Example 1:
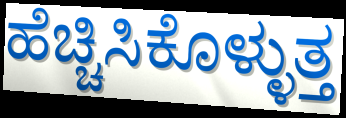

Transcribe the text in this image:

ಹೆಚ್ಚಿಸಿಕೊಳ್ಳುತ್ತ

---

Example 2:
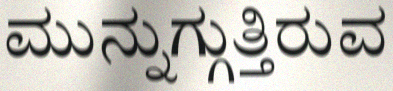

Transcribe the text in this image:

ಮುನ್ನುಗ್ಗುತ್ತಿರುವ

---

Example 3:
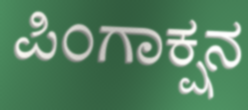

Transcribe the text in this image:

ಪಿಂಗಾಕ್ಷನ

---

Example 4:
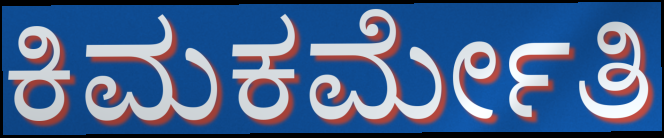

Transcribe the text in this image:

ಕಿಮಕರ್ಮೇತಿ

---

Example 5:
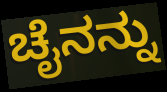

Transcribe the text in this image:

ಚೈನನ್ನು